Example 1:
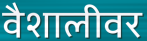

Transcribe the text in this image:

वैशालीवर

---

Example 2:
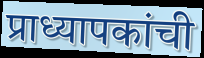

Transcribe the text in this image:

प्राध्यापकांची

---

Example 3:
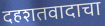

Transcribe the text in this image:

दहशतवादाचा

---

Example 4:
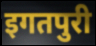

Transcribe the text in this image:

इगतपुरी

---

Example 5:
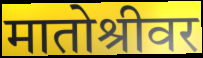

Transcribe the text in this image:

मातोश्रीवर